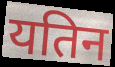
यतिन